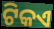
ଟିକଏ